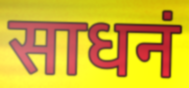
साधनं